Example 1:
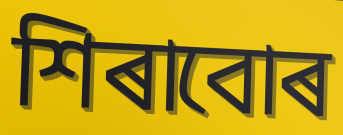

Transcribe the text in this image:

শিৰাবোৰ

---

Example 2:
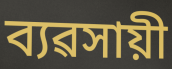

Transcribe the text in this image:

ব্যৱসায়ী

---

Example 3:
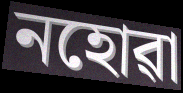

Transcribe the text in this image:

নহোৱা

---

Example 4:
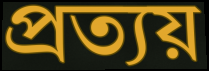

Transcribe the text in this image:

প্ৰত্যয়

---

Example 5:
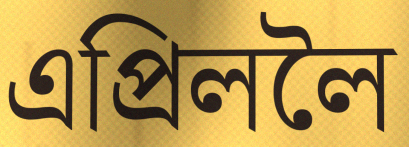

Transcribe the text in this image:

এপ্ৰিললৈ